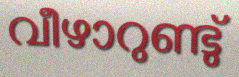
വീഴാറുണ്ടു്